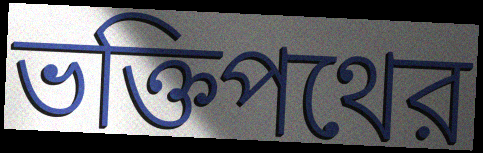
ভক্তিপথের